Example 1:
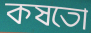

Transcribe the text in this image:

কষতো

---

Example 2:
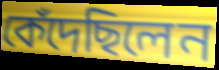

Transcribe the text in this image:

কেঁদেছিলেন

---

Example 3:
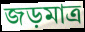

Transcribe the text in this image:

জড়মাত্র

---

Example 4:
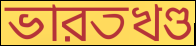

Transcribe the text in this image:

ভারতখণ্ড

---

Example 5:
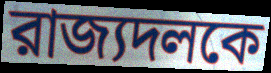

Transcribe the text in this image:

রাজ্যদলকে